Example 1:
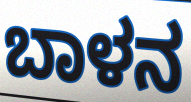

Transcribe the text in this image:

ಬಾಳನ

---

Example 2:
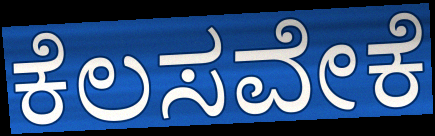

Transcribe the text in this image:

ಕೆಲಸವೇಕೆ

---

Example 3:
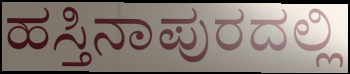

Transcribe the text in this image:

ಹಸ್ತಿನಾಪುರದಲ್ಲಿ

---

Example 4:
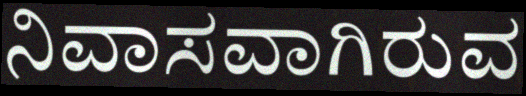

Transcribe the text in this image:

ನಿವಾಸವಾಗಿರುವ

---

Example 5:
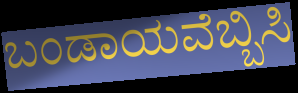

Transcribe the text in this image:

ಬಂಡಾಯವೆಬ್ಬಿಸಿ